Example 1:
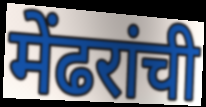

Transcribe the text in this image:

मेंढरांची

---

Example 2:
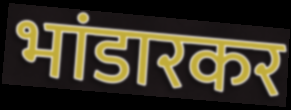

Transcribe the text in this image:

भांडारकर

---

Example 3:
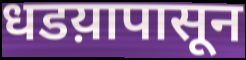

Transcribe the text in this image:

धडय़ापासून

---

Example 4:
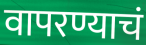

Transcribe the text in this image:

वापरण्याचं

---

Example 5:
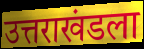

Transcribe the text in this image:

उत्तराखंडला